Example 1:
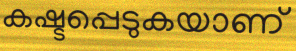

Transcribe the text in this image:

കഷ്ടപ്പെടുകയാണ്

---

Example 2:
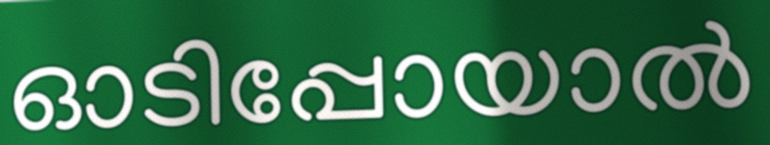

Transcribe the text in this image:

ഓടിപ്പോയാൽ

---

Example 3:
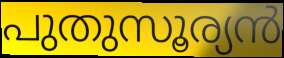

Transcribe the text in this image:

പുതുസൂര്യൻ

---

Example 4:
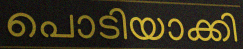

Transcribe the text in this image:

പൊടിയാക്കി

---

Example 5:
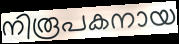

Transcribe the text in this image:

നിരൂപകനായ